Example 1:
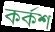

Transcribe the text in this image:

কৰ্কশ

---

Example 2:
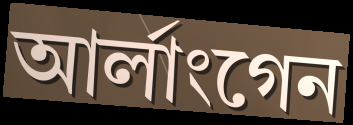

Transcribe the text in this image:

আৰ্লাংগেন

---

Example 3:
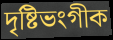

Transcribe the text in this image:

দৃষ্টিভংগীক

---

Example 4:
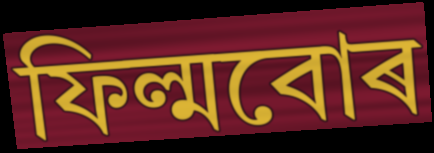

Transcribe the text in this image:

ফিল্মবোৰ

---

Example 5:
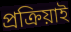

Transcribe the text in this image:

প্ৰক্ৰিয়াই